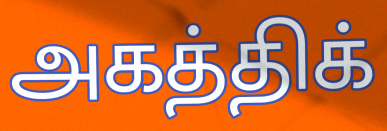
அகத்திக்